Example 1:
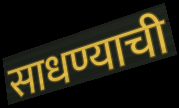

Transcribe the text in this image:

साधण्याची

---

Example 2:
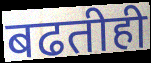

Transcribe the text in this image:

बढतीही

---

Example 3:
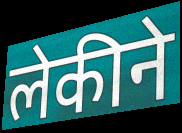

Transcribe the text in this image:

लेकीने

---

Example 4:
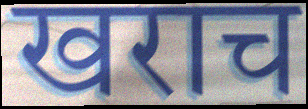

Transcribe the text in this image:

खराच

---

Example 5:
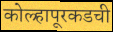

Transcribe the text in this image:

कोल्हापूरकडची